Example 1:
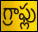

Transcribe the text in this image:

గ్రాఫ్లు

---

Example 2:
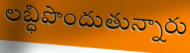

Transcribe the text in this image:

లబ్ధిపొందుతున్నారు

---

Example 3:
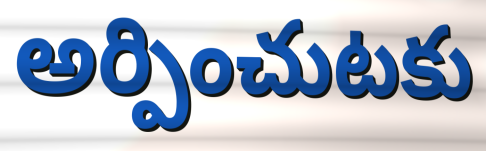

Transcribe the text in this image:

అర్పించుటకు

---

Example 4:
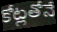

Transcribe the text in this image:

కోట్లతోనే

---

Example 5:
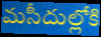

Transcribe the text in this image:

మసీదుల్లోకి